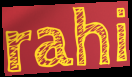
rahi